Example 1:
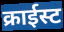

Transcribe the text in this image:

क्राईस्ट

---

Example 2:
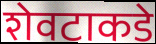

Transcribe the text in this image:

शेवटाकडे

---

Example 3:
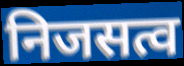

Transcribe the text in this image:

निजसत्व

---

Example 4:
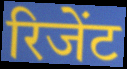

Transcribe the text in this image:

रिजेंट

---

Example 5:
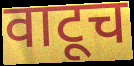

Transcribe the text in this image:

वाटूच